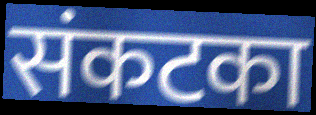
संकटका